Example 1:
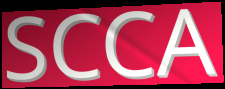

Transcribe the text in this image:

SCCA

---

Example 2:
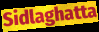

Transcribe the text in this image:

Sidlaghatta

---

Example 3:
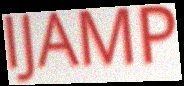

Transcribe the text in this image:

IJAMP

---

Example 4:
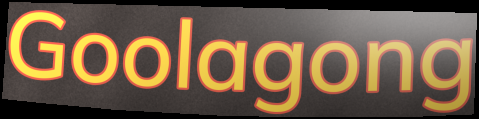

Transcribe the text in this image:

Goolagong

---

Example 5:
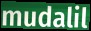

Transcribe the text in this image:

mudalil